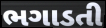
ભગાડતી